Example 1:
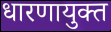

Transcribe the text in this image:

धारणायुक्त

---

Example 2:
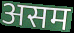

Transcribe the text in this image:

असम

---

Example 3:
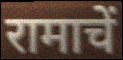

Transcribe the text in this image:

रामाचें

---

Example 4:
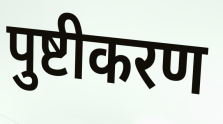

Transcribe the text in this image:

पुष्टीकरण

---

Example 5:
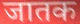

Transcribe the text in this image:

जातक